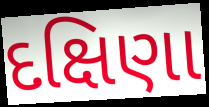
દક્ષિણા